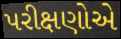
પરીક્ષણોએ